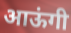
आऊंगी